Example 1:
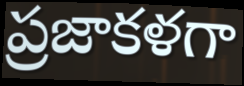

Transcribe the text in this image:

ప్రజాకళగా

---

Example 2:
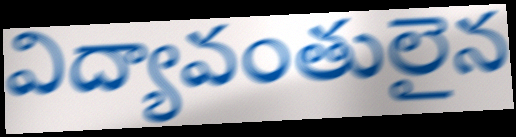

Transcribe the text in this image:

విద్యావంతులైన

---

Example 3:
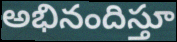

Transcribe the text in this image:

అభినందిస్తూ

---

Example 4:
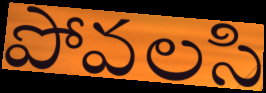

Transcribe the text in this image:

పోవలసి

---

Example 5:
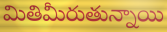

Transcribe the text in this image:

మితిమీరుతున్నాయి